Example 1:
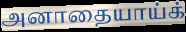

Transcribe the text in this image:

அனாதையாய்க்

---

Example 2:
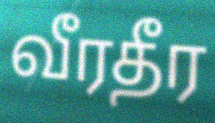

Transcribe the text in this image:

வீரதீர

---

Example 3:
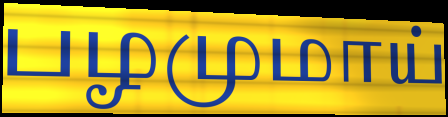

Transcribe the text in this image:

பழமுமாய்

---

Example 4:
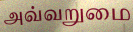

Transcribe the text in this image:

அவ்வறுமை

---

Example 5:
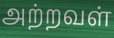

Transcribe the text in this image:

அற்றவள்